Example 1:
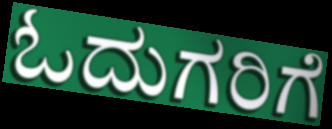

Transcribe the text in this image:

ಓದುಗರಿಗೆ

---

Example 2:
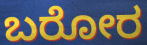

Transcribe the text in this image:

ಬರೋರ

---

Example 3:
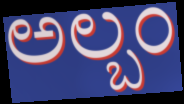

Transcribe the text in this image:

ಅಲ್ಬಂ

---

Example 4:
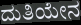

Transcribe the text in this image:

ದುತಿಯೇನ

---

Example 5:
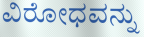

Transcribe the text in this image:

ವಿರೋಧವನ್ನು